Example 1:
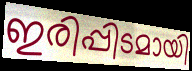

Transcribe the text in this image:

ഇരിപ്പിടമായി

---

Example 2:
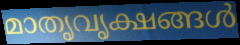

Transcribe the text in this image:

മാതൃവൃക്ഷങ്ങൾ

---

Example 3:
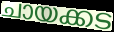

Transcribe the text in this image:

ചായക്കട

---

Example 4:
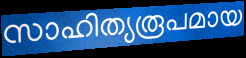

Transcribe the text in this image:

സാഹിത്യരൂപമായ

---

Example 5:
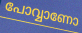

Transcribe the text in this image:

പോവ്വാണോ